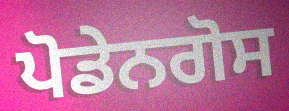
ਪੋਡੇਨਗੋਸ